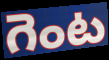
గెంట